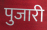
पुजारी